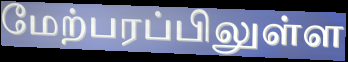
மேற்பரப்பிலுள்ள